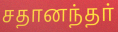
சதானந்தர்